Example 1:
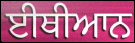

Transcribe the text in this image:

ਈਥੀਆਨ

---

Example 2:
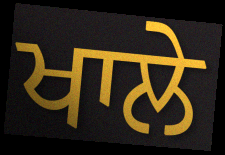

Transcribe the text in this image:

ਖਾਲੇ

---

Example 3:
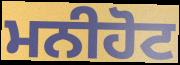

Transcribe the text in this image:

ਮਨੀਹੋਟ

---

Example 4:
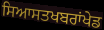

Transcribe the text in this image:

ਸਿਆਸਤਖਬਰਾਂਖੇਡ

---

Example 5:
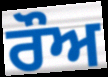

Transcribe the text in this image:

ਰੌਅ